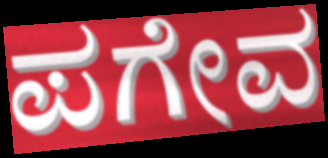
ಪಗೇವ